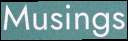
Musings